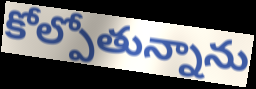
కోల్పోతున్నాను